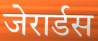
जेरार्डस